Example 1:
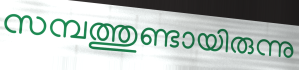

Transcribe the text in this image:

സമ്പത്തുണ്ടായിരുന്നു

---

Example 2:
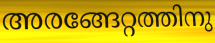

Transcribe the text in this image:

അരങ്ങേറ്റത്തിനു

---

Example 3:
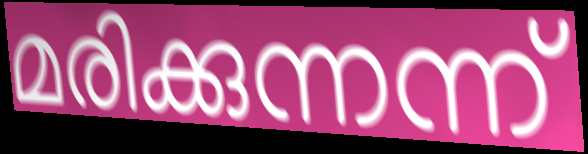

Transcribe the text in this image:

മരിക്കുന്നന്ന്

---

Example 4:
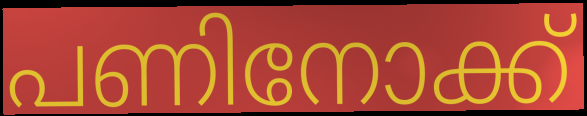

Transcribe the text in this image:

പണിനോക്ക്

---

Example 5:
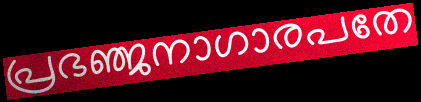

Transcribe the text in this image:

പ്രഭഞ്ജനാഗാരപതേ